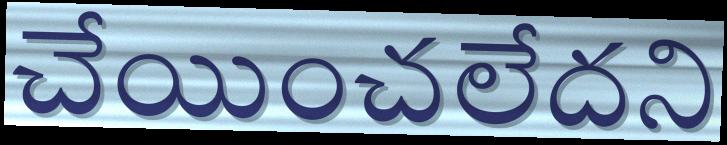
చేయించలేదని